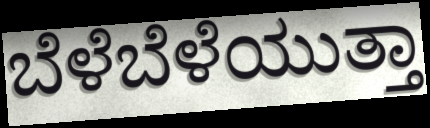
ಬೆಳೆಬೆಳೆಯುತ್ತಾ